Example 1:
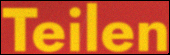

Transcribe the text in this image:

Teilen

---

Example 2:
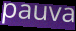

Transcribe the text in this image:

pauva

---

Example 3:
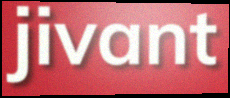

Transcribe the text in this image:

jivant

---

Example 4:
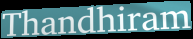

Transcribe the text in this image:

Thandhiram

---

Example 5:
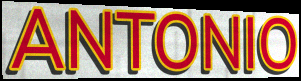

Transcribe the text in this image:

ANTONIO